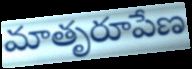
మాతృరూపేణ